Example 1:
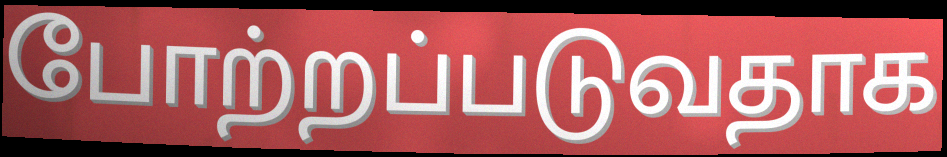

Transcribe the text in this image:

போற்றப்படுவதாக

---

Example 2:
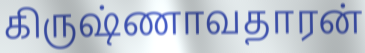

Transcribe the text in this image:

கிருஷ்ணாவதாரன்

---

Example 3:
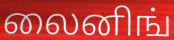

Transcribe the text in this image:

லைனிங்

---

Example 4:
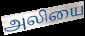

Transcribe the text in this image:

அலியை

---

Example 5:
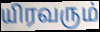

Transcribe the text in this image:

யிரவரும்